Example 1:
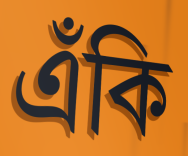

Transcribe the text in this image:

এঁকি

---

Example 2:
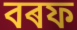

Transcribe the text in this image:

বৰফ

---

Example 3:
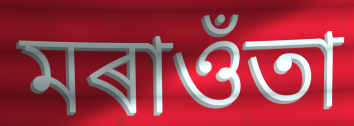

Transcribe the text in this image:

মৰাওঁতা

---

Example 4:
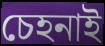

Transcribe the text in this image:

চেহনাই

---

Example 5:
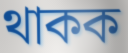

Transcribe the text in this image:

থাকক